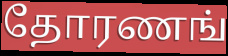
தோரணங்